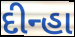
દીન્હા